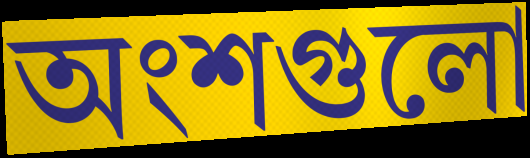
অংশগুলো